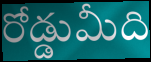
రోడ్డుమీది